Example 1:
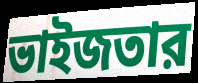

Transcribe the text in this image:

ভাইজতার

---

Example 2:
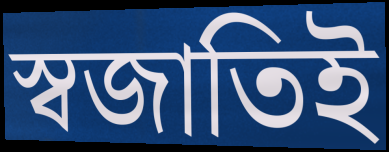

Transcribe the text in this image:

স্বজাতিই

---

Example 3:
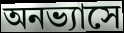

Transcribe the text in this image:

অনভ্যাসে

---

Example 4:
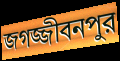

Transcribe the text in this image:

জগজ্জীবনপুর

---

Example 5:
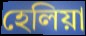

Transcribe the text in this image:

হেলিয়া